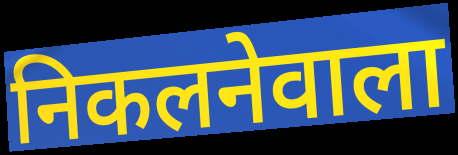
निकलनेवाला